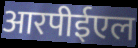
आरपीईएल